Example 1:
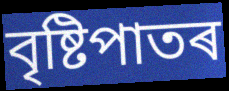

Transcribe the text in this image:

বৃষ্টিপাতৰ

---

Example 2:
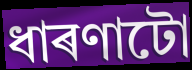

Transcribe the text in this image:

ধাৰণাটো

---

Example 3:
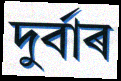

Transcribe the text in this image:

দুৰ্বাৰ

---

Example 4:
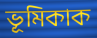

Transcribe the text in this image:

ভূমিকাক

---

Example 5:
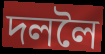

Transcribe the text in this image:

দললৈ